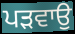
ਪੜਵਾਉ